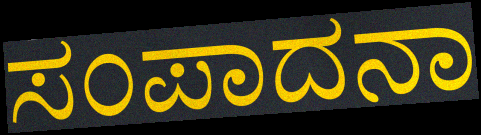
ಸಂಪಾದನಾ